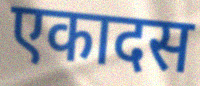
एकादस